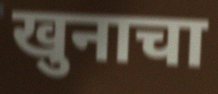
खुनाचा